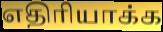
எதிரியாக்க